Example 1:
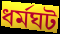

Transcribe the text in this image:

ধর্মঘট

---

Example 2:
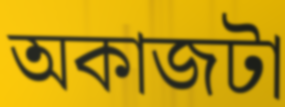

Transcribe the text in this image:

অকাজটা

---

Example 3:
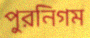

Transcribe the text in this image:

পুরনিগম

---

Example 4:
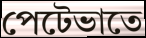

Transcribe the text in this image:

পেটেভাতে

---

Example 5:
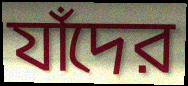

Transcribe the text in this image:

যাঁদের